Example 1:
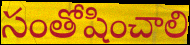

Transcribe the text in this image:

సంతోషించాలి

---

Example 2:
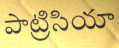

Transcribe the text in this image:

పాట్రిసియా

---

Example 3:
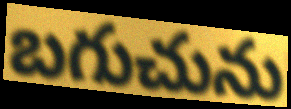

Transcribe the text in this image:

బగుచును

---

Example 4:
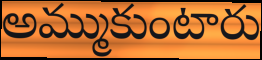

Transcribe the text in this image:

అమ్ముకుంటారు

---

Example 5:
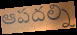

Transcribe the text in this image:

ఆపదల్ని